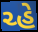
ચ્હે